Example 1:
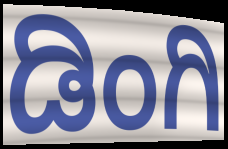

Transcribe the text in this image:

ಡಿಂಗಿ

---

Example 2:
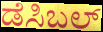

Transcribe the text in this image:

ಡೆಸಿಬಲ್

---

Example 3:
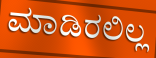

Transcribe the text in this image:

ಮಾಡಿರಲಿಲ್ಲ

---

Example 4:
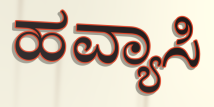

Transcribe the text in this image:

ಹವ್ಯಾಸಿ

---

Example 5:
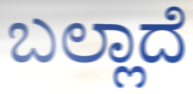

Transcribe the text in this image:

ಬಲ್ಲಾದೆ